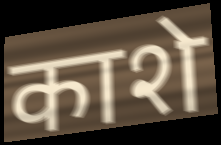
काशे